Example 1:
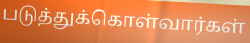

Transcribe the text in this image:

படுத்துக்கொள்வார்கள்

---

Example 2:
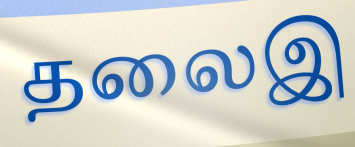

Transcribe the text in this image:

தலைஇ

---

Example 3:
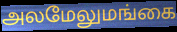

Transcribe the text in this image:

அலமேலுமங்கை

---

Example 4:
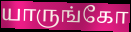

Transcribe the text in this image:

யாருங்கோ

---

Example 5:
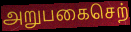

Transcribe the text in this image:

அறுபகைசெற்